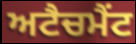
ਅਟੈਚਮੈਂਟ